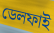
ডেলফাই